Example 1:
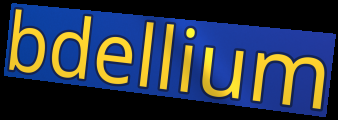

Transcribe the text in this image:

bdellium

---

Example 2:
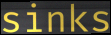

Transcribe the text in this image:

sinks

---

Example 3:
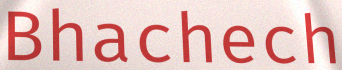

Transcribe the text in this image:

Bhachech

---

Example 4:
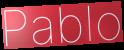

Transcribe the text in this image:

Pablo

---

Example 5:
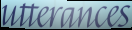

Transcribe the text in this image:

utterances